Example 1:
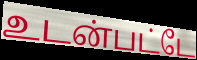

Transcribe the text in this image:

உடன்பட்டே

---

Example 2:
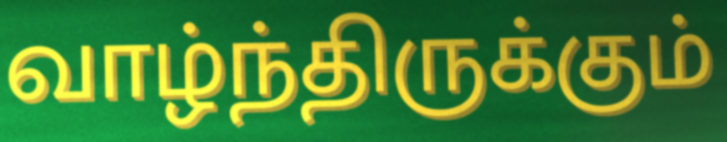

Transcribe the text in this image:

வாழ்ந்திருக்கும்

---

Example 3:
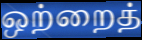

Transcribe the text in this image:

ஒற்றைத்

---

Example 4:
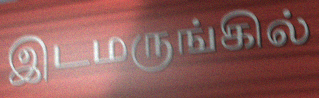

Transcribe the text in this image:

இடமருங்கில்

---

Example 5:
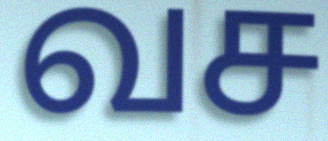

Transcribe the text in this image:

வச